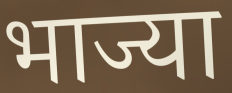
भाज्या